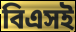
বিএসই